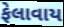
ફેલાવાય